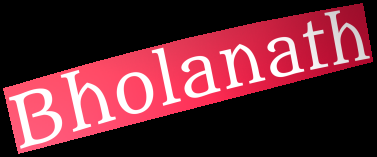
Bholanath